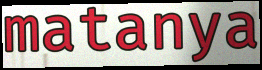
matanya